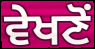
ਵੇਖਣੋਂ